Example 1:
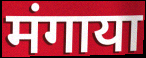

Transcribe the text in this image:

मंगाया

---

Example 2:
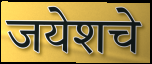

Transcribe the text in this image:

जयेशचे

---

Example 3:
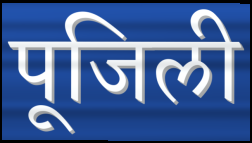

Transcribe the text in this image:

पूजिली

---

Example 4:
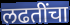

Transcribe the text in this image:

लढतींचा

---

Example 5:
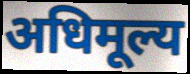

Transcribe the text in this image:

अधिमूल्य